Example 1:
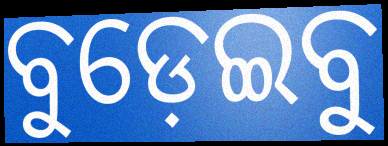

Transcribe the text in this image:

ବୁଡ଼େଇବୁ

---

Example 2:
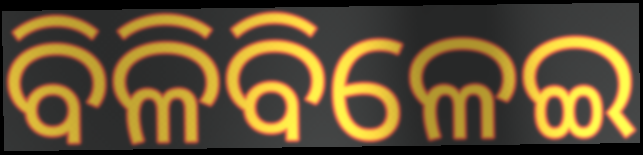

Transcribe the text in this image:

ବିଳିବିଳେଇ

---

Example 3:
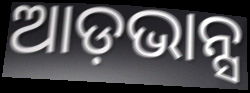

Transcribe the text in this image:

ଆଡ଼ଭାନ୍ସ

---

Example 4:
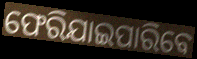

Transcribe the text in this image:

ଫେରିଯାଇପାରିବେ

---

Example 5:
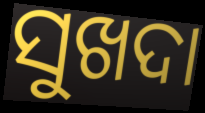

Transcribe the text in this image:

ସୁଖଦା